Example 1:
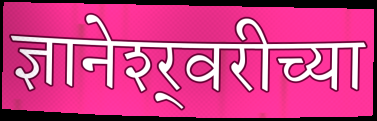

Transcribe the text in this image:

ज्ञानेश्र्वरीच्या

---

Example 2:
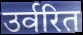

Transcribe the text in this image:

उर्वरित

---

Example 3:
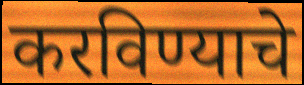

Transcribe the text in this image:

करविण्याचे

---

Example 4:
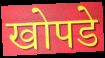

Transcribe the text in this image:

खोपडे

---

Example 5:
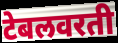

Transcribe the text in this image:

टेबलवरती